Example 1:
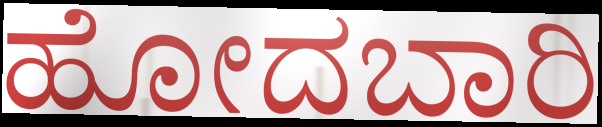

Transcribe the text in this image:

ಹೋದಬಾರಿ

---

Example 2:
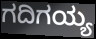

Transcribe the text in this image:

ಗದಿಗಯ್ಯ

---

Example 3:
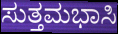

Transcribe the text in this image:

ಸುತ್ತಮಭಾಸಿ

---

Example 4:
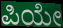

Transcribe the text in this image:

ಪಿಯೇ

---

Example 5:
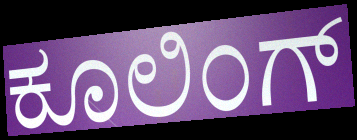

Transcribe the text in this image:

ಕೂಲಿಂಗ್